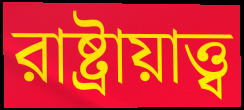
রাষ্ট্রায়াত্ত্ব